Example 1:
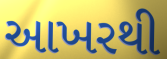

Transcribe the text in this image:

આખરથી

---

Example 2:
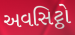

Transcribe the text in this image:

અવસિટ્ઠો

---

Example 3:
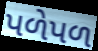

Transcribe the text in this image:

પળેપળ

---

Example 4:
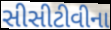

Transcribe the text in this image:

સીસીટીવીના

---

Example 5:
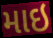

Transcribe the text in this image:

માઇ